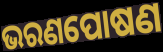
ଭରଣପୋଷଣ